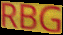
RBG